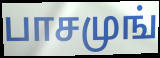
பாசமுங்